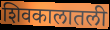
शिवकालातली